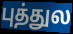
புத்துல